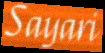
Sayari